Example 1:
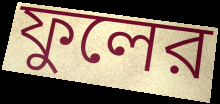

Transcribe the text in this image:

ফুলের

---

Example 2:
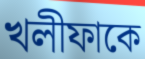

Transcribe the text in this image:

খলীফাকে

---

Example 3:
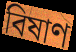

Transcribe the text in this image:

বিষাণ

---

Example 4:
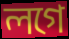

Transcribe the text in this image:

লগে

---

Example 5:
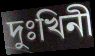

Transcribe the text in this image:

দুঃখিনী